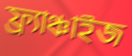
ফ্র্যাঞ্চাইজ